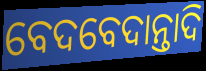
ବେଦବେଦାନ୍ତାଦି